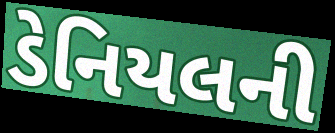
ડેનિયલની